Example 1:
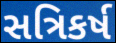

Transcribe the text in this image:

સત્રિકર્ષ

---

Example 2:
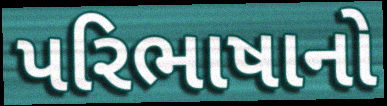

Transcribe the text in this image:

પરિભાષાનો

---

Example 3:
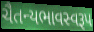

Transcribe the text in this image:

ચૈતન્યભાવસ્વરૂપ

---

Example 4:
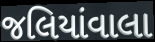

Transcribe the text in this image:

જલિયાંવાલા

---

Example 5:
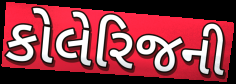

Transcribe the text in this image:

કોલેરિજની